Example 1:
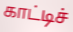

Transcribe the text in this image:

காட்டிச்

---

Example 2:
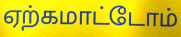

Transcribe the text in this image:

ஏற்கமாட்டோம்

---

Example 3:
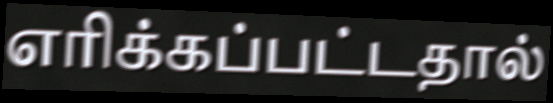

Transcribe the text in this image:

எரிக்கப்பட்டதால்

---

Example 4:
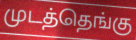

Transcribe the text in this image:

முடத்தெங்கு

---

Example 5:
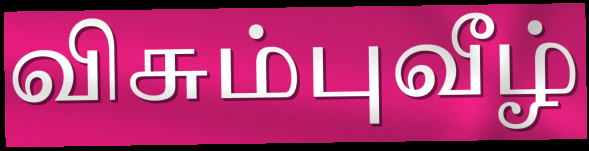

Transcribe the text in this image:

விசும்புவீழ்